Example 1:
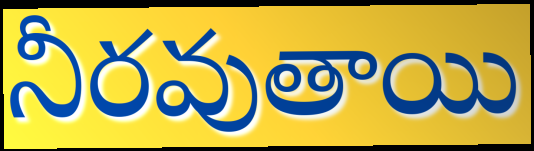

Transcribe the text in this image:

నీరవుతాయి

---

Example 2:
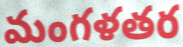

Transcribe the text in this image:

మంగళతర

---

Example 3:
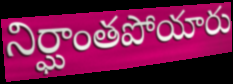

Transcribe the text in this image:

నిర్ఘాంతపోయారు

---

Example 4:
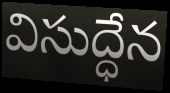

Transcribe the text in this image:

విసుద్ధేన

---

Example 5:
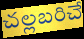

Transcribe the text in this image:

చల్లబరిచే